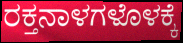
ರಕ್ತನಾಳಗಳೊಳಕ್ಕೆ